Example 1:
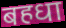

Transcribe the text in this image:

बहधा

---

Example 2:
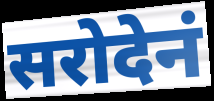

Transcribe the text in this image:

सरोदेनं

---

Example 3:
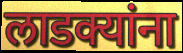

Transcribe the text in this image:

लाडक्यांना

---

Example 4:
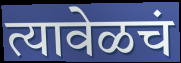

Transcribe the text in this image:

त्यावेळचं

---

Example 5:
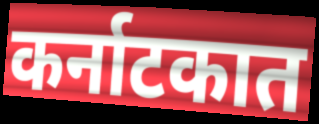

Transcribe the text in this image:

कर्नाटकात